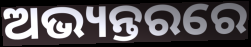
ଅଭ୍ୟନ୍ତରରେ